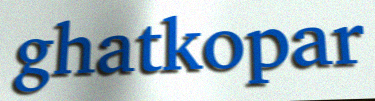
ghatkopar